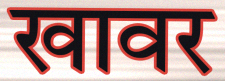
खावर